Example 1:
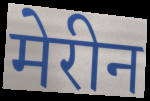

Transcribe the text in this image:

मेरीन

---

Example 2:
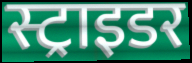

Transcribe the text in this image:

स्ट्राइडर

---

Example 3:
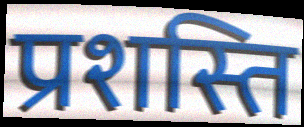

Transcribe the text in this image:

प्रशस्ति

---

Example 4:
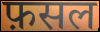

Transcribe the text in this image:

फ़सल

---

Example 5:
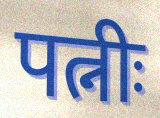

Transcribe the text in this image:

पत्नीः